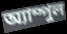
অ্যাম্পুল